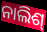
ନାଲିଶ୍